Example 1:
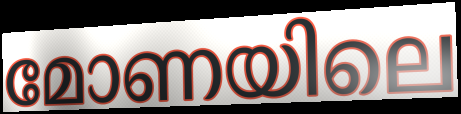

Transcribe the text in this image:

മോണയിലെ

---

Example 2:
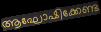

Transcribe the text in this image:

ആഘോഷിക്കേണ്ട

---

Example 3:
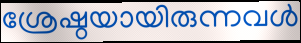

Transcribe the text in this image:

ശ്രേഷ്ഠയായിരുന്നവൾ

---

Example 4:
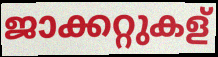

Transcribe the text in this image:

ജാക്കറ്റുകള്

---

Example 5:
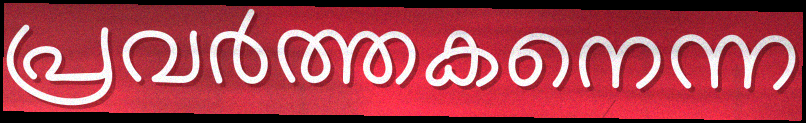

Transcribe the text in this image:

പ്രവർത്തകനെന്ന